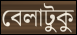
বেলাটুকু